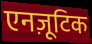
एनज़ूटिक